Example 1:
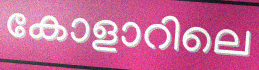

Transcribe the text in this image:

കോളാറിലെ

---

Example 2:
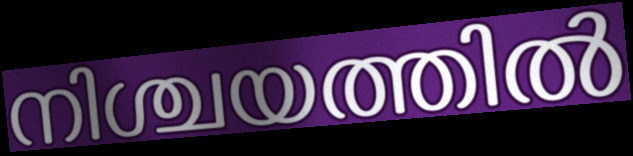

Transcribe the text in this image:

നിശ്ചയത്തിൽ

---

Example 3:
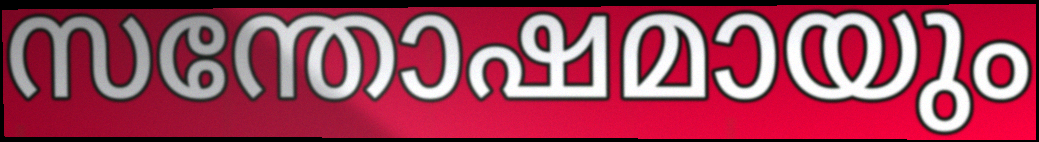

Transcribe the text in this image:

സന്തോഷമായും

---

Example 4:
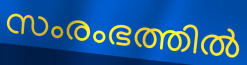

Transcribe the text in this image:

സംരംഭത്തിൽ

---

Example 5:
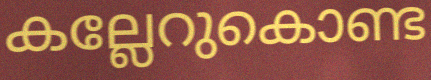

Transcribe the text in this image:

കല്ലേറുകൊണ്ട